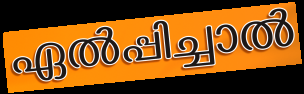
ഏൽപ്പിച്ചാൽ